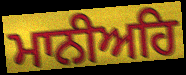
ਮਾਨੀਅਹਿ